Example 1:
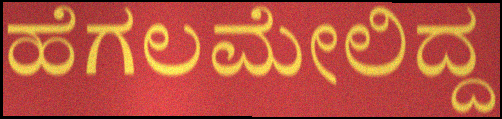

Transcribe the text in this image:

ಹೆಗಲಮೇಲಿದ್ದ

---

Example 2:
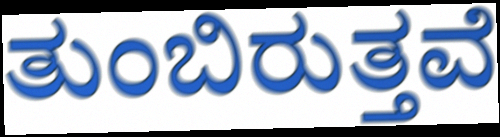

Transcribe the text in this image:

ತುಂಬಿರುತ್ತವೆ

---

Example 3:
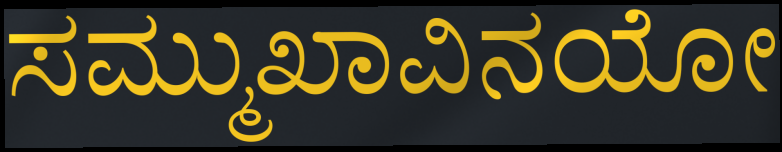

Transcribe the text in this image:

ಸಮ್ಮುಖಾವಿನಯೋ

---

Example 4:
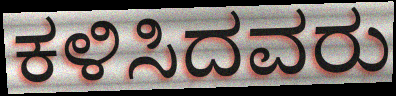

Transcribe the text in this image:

ಕಳಿಸಿದವರು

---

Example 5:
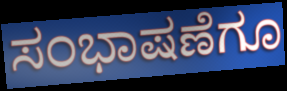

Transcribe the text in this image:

ಸಂಭಾಷಣೆಗೂ